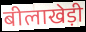
बीलाखेड़ी